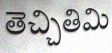
తెచ్చితిమి